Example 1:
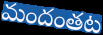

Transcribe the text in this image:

మందంతట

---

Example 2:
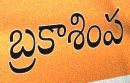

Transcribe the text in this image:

బ్రకాశింప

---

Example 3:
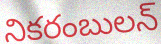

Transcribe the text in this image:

నికరంబులన్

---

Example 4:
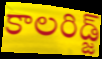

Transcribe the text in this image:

కాలరిడ్జ్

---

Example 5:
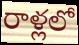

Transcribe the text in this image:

రాళ్లలో